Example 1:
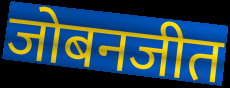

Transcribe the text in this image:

जोबनजीत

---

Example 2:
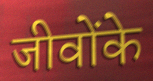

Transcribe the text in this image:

जीवोंके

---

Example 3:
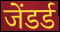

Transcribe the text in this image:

जेंडर्ड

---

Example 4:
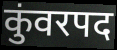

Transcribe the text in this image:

कुंवरपद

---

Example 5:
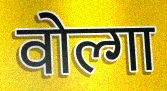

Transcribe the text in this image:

वोल्गा